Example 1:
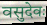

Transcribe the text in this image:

वसुदेवः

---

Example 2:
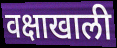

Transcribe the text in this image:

वक्षाखाली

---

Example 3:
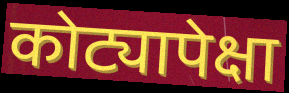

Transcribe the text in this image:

कोट्यापेक्षा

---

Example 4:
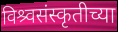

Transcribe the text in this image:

विश्र्वसंस्कृतीच्या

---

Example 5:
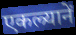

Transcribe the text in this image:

एकल्यानें